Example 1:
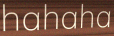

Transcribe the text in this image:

hahaha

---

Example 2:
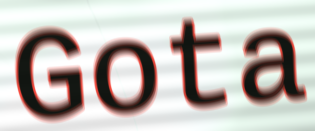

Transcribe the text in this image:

Gota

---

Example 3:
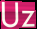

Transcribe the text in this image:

Uz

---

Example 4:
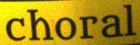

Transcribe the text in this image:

choral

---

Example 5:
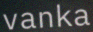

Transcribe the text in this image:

vanka